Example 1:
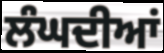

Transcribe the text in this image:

ਲੰਘਦੀਆਂ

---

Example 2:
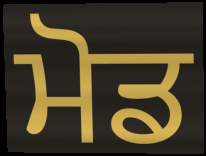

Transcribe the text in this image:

ਮੋਡ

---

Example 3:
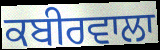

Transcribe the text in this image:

ਕਬੀਰਵਾਲਾ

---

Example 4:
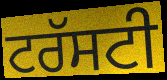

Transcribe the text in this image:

ਟਰੱਸਟੀ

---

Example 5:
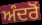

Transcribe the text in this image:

ਅੰਦਰੋਂ